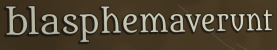
blasphemaverunt